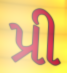
પ્રી